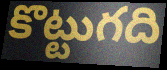
కొట్టుగది